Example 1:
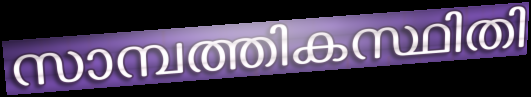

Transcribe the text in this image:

സാമ്പത്തികസ്ഥിതി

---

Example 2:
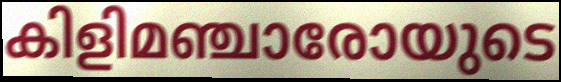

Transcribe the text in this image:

കിളിമഞ്ചാരോയുടെ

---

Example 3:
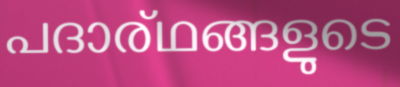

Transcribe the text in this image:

പദാര്ഥങ്ങളുടെ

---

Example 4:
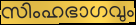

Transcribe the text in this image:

സിംഹഭാഗവും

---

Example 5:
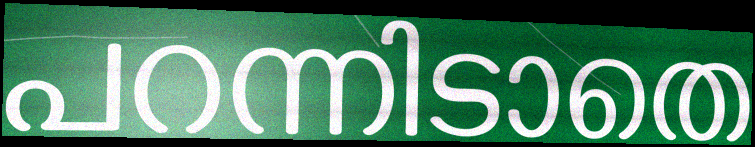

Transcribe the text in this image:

പറന്നിടാതെ